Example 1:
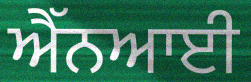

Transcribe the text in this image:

ਐੱਨਆਈ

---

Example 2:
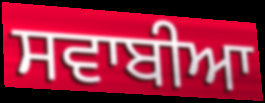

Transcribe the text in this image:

ਸਵਾਬੀਆ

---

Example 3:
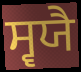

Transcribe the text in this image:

ਸ੍ਵਯੈ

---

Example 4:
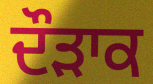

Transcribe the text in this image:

ਦੌੜਾਕ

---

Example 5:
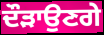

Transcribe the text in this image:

ਦੌੜਾਉਣਗੇ